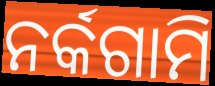
ନର୍କଗାମି